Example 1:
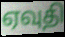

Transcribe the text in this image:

ஏவுதி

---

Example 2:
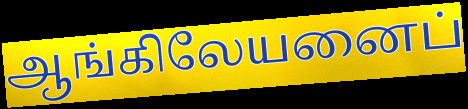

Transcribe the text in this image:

ஆங்கிலேயனைப்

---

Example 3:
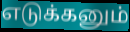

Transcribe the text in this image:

எடுக்கனும்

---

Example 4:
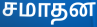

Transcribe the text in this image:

சமாதன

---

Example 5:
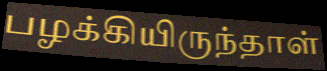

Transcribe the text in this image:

பழக்கியிருந்தாள்